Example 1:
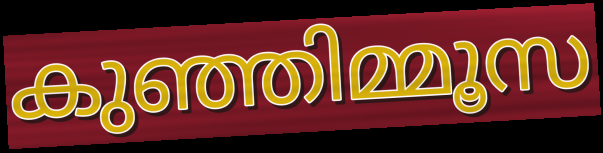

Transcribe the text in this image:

കുഞ്ഞിമ്മൂസ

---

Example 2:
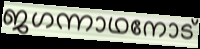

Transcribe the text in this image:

ജഗന്നാഥനോട്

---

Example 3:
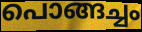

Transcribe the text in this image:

പൊങ്ങച്ചം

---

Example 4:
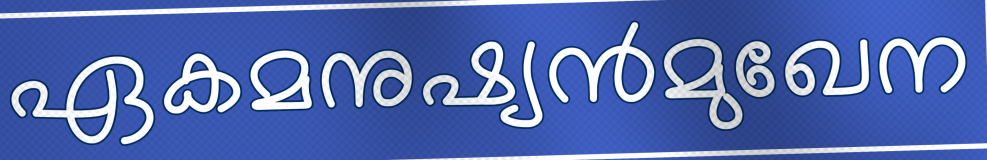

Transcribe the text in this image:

ഏകമനുഷ്യൻമുഖേന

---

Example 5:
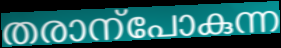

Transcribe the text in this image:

തരാന്പോകുന്ന